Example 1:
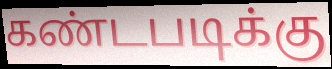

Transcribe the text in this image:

கண்டபடிக்கு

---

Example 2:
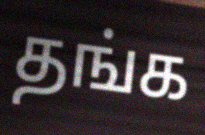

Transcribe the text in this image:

தங்க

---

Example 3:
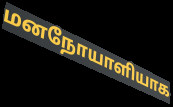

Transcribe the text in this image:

மனநோயாளியாக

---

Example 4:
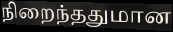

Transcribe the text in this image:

நிறைந்ததுமான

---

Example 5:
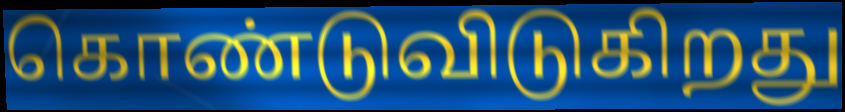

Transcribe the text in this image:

கொண்டுவிடுகிறது